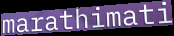
marathimati